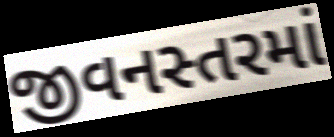
જીવનસ્તરમાં